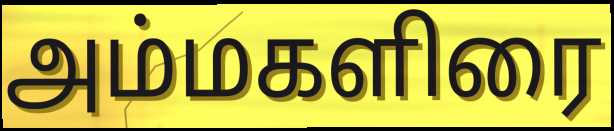
அம்மகளிரை